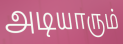
அடியாரும்